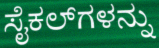
ಸೈಕಲ್‌ಗಳನ್ನು